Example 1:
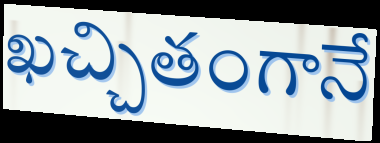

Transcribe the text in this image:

ఖచ్చితంగానే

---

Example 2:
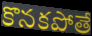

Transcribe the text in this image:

కొనకపోతే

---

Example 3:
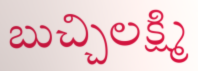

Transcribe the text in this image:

బుచ్చిలక్ష్మి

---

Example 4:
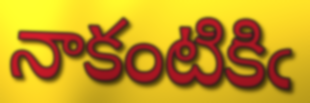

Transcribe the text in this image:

నాకంటికిఁ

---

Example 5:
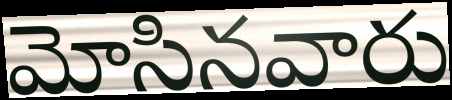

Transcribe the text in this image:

మోసినవారు